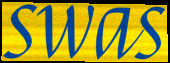
swas